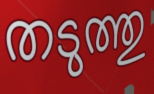
തടുത്തു